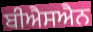
ਬੀਐਸਐਨ